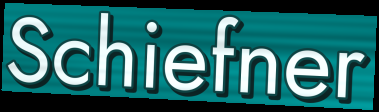
Schiefner